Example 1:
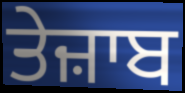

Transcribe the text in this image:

ਤੇਜ਼ਾਬ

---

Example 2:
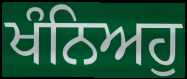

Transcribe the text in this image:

ਖੰਨਿਅਹੁ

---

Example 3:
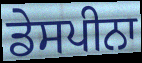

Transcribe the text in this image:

ਡੇਸਪੀਨਾ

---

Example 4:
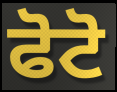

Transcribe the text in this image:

ਫੋਟੋ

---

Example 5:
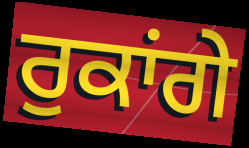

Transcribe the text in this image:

ਰੁਕਾਂਗੇ